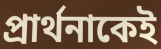
প্রার্থনাকেই